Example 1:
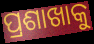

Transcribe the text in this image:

ପ୍ରଶାଖାକୁ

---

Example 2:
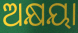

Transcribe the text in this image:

ଅକ୍ଷୟା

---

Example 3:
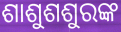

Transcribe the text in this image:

ଶାଶୁଶଶୁରଙ୍କ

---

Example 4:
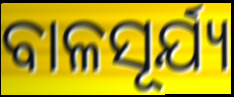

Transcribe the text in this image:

ବାଳସୂର୍ଯ୍ୟ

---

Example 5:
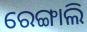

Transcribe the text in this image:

ରେଙ୍ଗାଲି